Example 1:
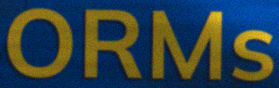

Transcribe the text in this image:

ORMs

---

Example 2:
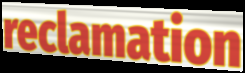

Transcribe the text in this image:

reclamation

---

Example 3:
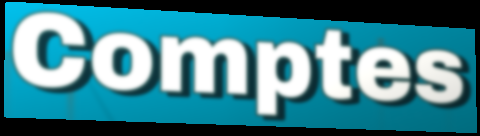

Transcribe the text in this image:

Comptes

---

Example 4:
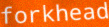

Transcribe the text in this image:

forkhead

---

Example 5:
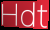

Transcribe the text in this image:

Hdt